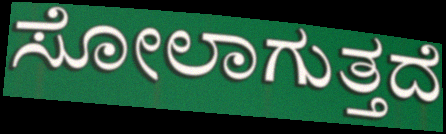
ಸೋಲಾಗುತ್ತದೆ